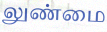
லுண்மை